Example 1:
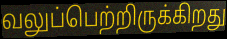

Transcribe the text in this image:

வலுப்பெற்றிருக்கிறது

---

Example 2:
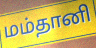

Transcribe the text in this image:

மம்தானி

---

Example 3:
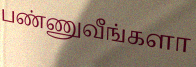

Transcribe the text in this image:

பண்ணுவீங்களா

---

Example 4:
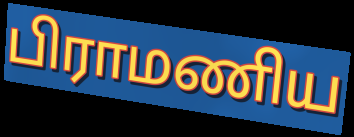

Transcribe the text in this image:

பிராமணிய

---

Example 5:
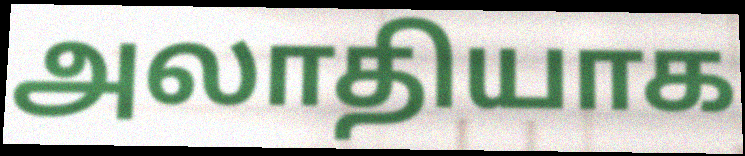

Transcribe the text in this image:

அலாதியாக